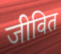
जीवित